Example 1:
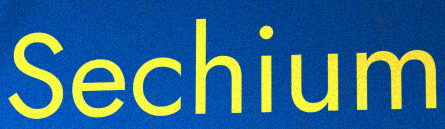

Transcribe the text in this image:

Sechium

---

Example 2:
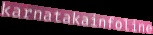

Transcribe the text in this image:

karnatakainfoline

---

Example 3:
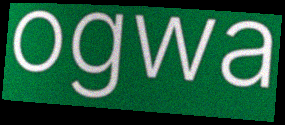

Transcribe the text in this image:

ogwa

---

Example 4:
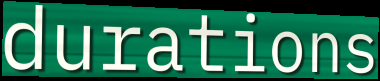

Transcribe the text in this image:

durations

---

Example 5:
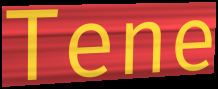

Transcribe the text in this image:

Tene